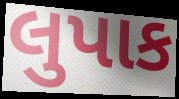
લુપાક